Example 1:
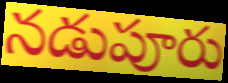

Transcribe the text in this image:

నడుపూరు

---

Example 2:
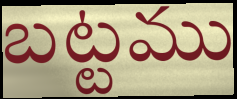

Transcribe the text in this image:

బట్టము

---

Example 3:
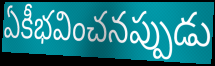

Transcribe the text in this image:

ఏకీభవించనప్పుడు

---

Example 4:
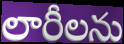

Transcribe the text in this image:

లారీలను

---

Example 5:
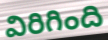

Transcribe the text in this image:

విరిగింది